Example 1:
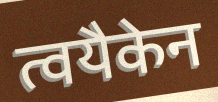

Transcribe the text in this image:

त्वयैकेन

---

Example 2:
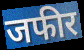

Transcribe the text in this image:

जफीर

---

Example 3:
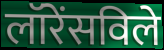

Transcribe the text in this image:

लॉरेंसविले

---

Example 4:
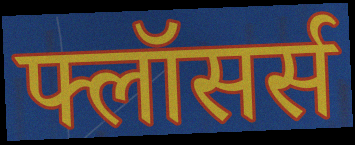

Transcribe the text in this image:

फ्लॉसर्स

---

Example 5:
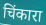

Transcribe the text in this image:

चिंकारा